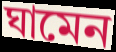
ঘামেন